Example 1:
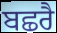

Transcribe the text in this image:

ਬਛਰੈ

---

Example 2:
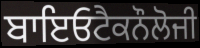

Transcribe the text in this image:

ਬਾਇਓਟੈਕਨੌਲੋਜੀ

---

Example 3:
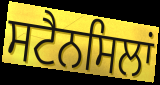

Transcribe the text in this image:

ਸਟੈਨਸਿਲਾਂ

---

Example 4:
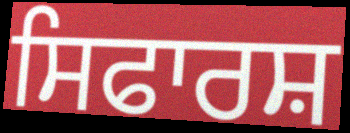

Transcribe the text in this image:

ਸਿਫਾਰਸ਼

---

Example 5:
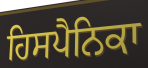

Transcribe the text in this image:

ਹਿਸਪੈਨਿਕਾ